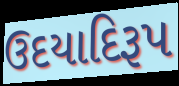
ઉદયાદિરૂપ